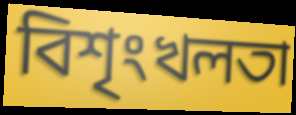
বিশৃংখলতা